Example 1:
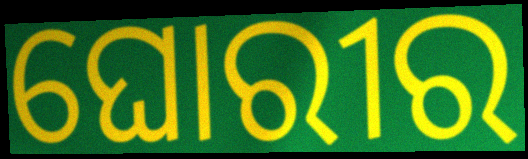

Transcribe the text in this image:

ଘୋରୀର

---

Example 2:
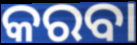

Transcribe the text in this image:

କରବା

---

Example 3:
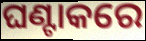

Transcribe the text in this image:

ଘଣ୍ଟାକରେ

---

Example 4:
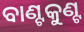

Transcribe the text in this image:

ବାଣ୍ଟକୁଣ୍ଟ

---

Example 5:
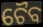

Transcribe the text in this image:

ଚୈବ